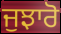
ਜੁਝਾਰੋ